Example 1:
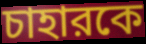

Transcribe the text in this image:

চাহারকে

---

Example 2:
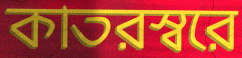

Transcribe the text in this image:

কাতরস্বরে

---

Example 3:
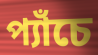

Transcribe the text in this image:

প্যাঁচে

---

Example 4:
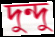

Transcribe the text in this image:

দুন্দু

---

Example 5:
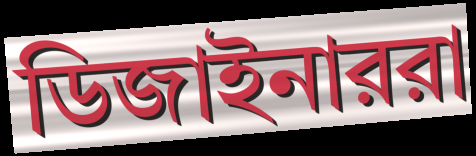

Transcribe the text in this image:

ডিজাইনাররা